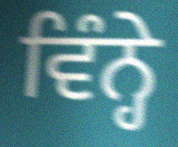
ਵਿੰਨ੍ਹੇ